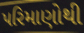
પરિમાણોથી